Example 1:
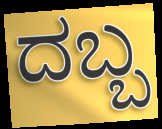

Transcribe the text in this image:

ದಬ್ಬ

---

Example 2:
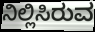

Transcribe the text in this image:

ನಿಲ್ಲಿಸಿರುವ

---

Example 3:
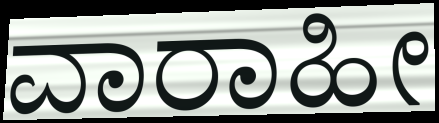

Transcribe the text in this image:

ವಾರಾಹೀ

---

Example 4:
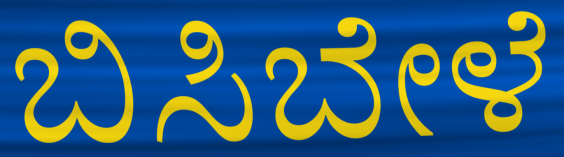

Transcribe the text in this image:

ಬಿಸಿಬೇಳೆ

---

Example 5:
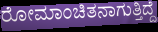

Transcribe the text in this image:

ರೋಮಾಂಚಿತನಾಗುತ್ತಿದ್ದೆ